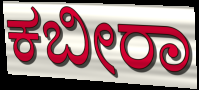
ಕಬೀರಾ